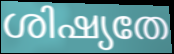
ശിഷ്യതേ